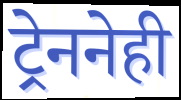
ट्रेननेही